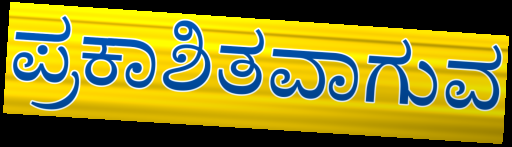
ಪ್ರಕಾಶಿತವಾಗುವ